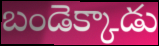
బండెక్కాడు